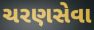
ચરણસેવા